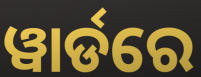
ୱାର୍ଡରେ